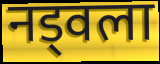
नड्वला